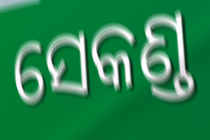
ସେକଣ୍ଡ